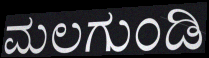
ಮಲಗುಂಡಿ